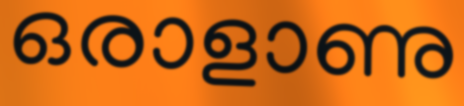
ഒരാളാണു